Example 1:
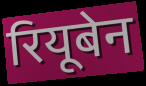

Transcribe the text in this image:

रियूबेन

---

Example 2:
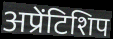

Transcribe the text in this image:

अप्रेंटिशिप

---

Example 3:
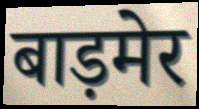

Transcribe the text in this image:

बाड़मेर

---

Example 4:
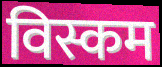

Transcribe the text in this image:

विस्कम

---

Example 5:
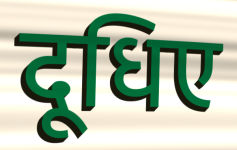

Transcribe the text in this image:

दूधिए